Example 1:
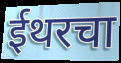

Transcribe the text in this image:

ईथरचा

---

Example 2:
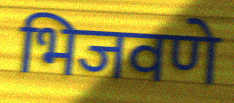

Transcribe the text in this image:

भिजवणे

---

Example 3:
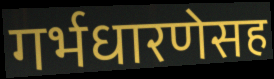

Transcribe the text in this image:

गर्भधारणेसह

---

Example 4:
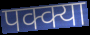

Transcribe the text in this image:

पक्क्या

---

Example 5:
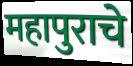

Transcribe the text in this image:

महापुराचे